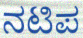
ನಟಿಪ